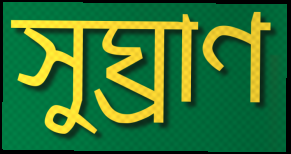
সুঘ্রাণ